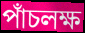
পাঁচলক্ষ